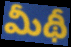
మీథీ